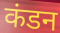
कंडन